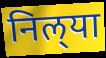
निल्या